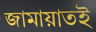
জামায়াতই